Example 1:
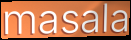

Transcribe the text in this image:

masala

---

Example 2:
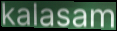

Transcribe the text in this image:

kalasam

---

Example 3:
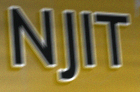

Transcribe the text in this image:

NJIT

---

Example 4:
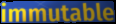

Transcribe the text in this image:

immutable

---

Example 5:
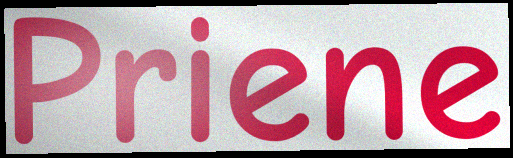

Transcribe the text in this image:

Priene